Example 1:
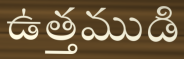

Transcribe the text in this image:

ఉత్తముడి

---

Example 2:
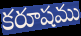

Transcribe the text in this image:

కరూషము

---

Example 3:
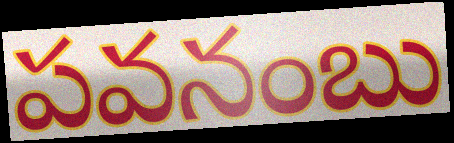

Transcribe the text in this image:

పవనంబు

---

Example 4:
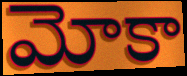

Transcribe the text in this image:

మోకా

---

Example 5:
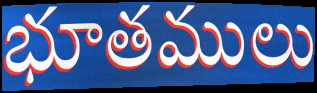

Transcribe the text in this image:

భూతములు